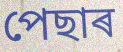
পেছাৰ